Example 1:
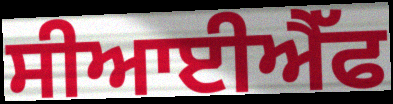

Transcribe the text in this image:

ਸੀਆਈਐੱਫ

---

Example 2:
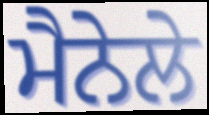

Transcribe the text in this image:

ਮੈਨੇਲੇ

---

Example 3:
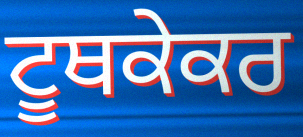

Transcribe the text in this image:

ਟੂਥਕੇਕਰ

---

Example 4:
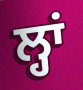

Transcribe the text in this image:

ਲ੍ਹਾਂ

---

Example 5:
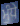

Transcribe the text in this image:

ਮੁੰਧੇ